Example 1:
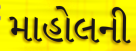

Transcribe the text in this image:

માહોલની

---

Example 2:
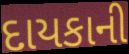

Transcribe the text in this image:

દાયકાની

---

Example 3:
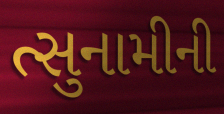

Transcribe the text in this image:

ત્સુનામીની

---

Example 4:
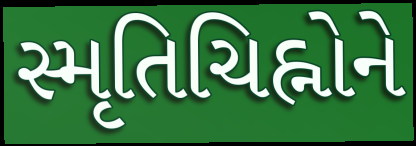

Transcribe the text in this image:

સ્મૃતિચિહ્નોને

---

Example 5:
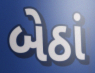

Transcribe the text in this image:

બેઠાં